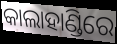
କାଲାହାଣ୍ଡିରେ